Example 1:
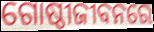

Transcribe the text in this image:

ଗୋଷ୍ଠୀଜୀବନରେ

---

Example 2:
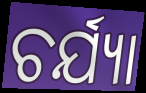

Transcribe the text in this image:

ଚର୍ଯ୍ଯା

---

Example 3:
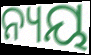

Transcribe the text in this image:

ନ୍ୟୟ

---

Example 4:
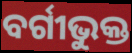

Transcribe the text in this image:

ବର୍ଗୀଭୁକ୍ତ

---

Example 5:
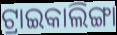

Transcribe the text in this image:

ଟ୍ରାଇକାଲିଙ୍ଗା